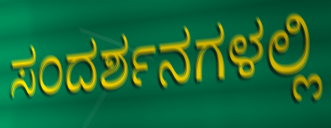
ಸಂದರ್ಶನಗಳಲ್ಲಿ